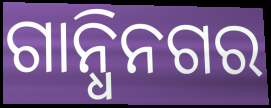
ଗାନ୍ଧିନଗର